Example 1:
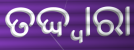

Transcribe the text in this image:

ତଦ୍ଦ୍ଵାରା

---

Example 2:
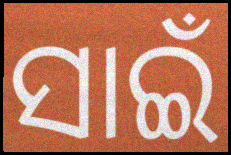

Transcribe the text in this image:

ସାଇଁ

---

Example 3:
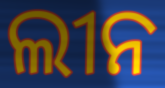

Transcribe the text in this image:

ଲୀନ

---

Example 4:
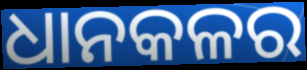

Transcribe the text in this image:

ଧାନକଳର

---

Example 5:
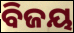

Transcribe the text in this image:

ବିଜୟ